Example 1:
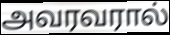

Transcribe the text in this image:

அவரவரால்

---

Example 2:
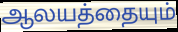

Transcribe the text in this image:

ஆலயத்தையும்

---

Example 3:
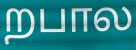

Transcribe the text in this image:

றபால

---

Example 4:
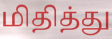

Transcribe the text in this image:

மிதித்து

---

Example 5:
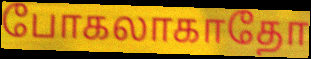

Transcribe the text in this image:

போகலாகாதோ